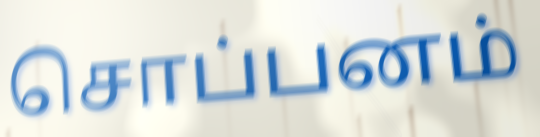
சொப்பனம்